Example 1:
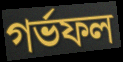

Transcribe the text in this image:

গর্ভফল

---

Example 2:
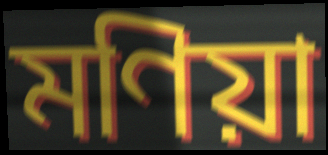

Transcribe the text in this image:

মণিয়া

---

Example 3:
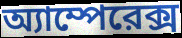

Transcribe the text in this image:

অ্যাম্পেরেক্স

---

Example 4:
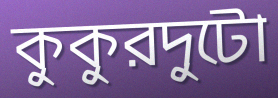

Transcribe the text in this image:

কুকুরদুটো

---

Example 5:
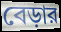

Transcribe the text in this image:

বেড়ার